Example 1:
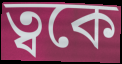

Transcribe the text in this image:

ত্বকে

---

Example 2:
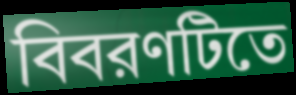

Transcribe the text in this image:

বিবরণটিতে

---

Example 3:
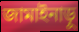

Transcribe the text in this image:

জামাইনাড়ু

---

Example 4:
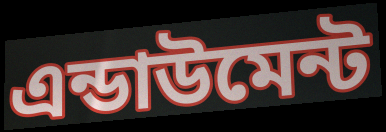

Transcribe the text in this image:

এন্ডাউমেন্ট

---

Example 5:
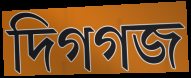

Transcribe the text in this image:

দিগগজ